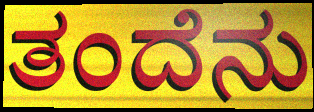
ತಂದೆನು